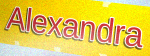
Alexandra